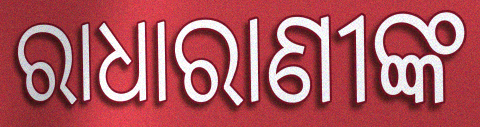
ରାଧାରାଣୀଙ୍କ